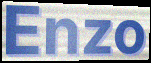
Enzo